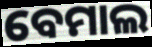
ବେମାଲ